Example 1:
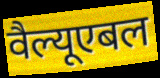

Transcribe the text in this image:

वैल्यूएबल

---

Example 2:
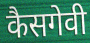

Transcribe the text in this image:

कैसगेवी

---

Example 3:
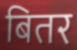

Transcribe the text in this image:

बितर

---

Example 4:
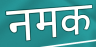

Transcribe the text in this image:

नमक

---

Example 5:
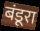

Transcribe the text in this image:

बंडूरा